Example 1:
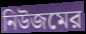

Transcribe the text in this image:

নিউজমের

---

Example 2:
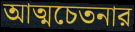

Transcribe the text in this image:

আত্মচেতনার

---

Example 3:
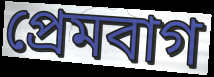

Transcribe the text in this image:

প্রেমবাগ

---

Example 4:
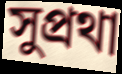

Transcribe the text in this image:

সুপ্রথা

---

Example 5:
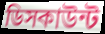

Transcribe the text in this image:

ডিসকাউন্ট